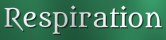
Respiration